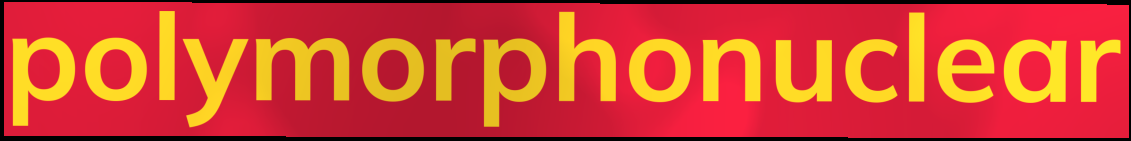
polymorphonuclear